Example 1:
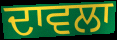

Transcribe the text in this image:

ਦਾਵਲਾ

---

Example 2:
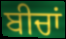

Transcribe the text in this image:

ਬੀਚਾਂ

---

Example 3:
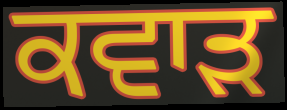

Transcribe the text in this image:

ਕਵਾੜ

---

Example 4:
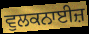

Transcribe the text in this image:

ਵੁਲਕਨਾਈਜ਼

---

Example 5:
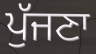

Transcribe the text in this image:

ਪੁੱਜਣਾ